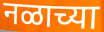
नळाच्या